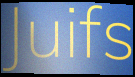
Juifs